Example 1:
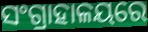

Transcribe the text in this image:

ସଂଗ୍ରାହାଳୟରେ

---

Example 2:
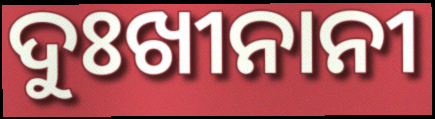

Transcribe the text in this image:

ଦୁଃଖୀନାନୀ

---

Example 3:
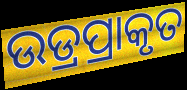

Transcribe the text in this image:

ଉଡ୍ରପ୍ରାକୃତ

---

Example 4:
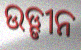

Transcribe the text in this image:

ଉଡ୍ଡୀନ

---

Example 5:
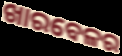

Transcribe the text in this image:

ଖାରବେଳର